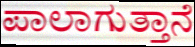
ಪಾಲಾಗುತ್ತಾನೆ